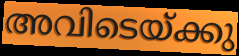
അവിടെയ്ക്കു